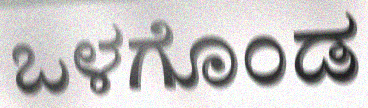
ಒಳಗೊಂಡ